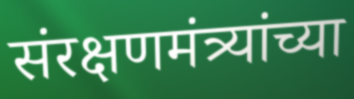
संरक्षणमंत्र्यांच्या